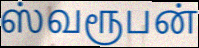
ஸ்வரூபன்